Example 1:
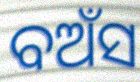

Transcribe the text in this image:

ବଅଁସ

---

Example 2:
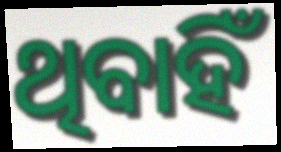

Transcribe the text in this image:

ଥିବାହିଁ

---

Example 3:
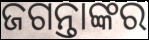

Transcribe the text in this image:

ଜଗନ୍ତାଙ୍କର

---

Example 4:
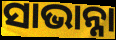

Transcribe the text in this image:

ସାଭାନ୍ନା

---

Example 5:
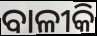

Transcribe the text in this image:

ବାଳୀକି